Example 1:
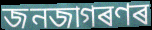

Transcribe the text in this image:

জনজাগৰণৰ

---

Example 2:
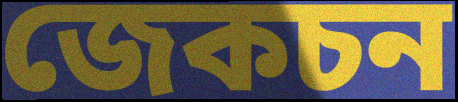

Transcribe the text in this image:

জেকচন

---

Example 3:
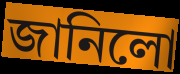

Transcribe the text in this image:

জানিলো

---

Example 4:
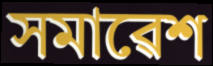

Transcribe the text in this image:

সমাৱেশ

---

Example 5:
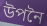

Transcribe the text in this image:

উপনৈ